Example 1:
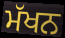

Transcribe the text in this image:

ਮੱਖਨ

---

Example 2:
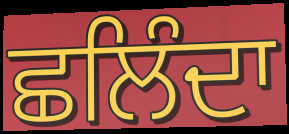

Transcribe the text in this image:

ਛਲਿੰਦਾ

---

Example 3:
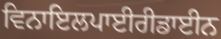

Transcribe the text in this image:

ਵਿਨਾਇਲਪਾਈਰੀਡਾਈਨ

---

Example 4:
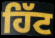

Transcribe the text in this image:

ਹਿੱਟ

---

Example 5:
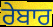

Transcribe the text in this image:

ਰੇਬਾਰ